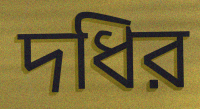
দধির